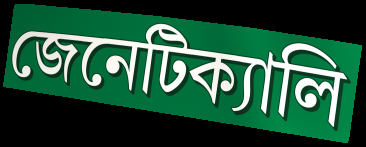
জেনেটিক্যালি